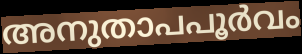
അനുതാപപൂർവം